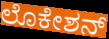
ಲೊಕೇಶನ್